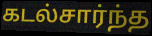
கடல்சார்ந்த